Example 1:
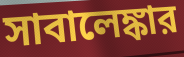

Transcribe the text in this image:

সাবালেঙ্কার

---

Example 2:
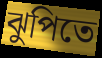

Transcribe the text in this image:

ঝুপিতে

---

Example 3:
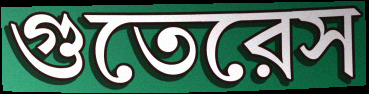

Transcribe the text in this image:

গুতেরেস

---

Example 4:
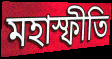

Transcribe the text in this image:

মহাস্ফীতি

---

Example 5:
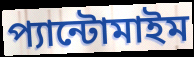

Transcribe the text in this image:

প্যান্টোমাইম